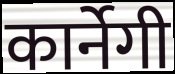
कार्नेगी